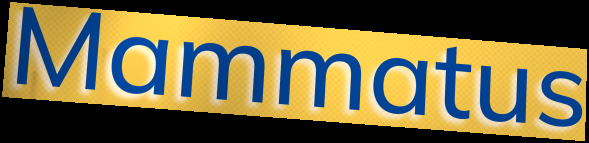
Mammatus